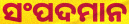
ସଂପଦମାନ